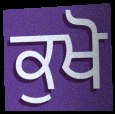
ਕੁਖੋ